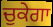
ਚੁਕੇਗਾ